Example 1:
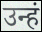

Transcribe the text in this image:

उन्हं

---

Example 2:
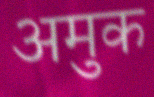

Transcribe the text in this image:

अमुक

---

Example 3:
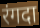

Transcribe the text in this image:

रंगदा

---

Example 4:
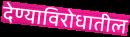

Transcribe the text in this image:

देण्याविरोधातील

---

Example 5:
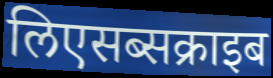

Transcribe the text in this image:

लिएसब्सक्राइब